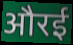
औरई